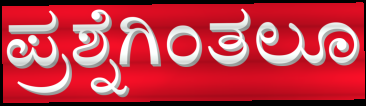
ಪ್ರಶ್ನೆಗಿಂತಲೂ